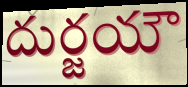
దుర్జయౌ